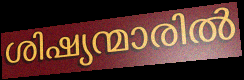
ശിഷ്യന്മാരിൽ